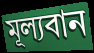
মূল্যবান